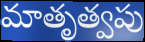
మాతృత్వపు